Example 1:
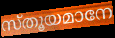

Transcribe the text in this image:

സ്തൂയമാനേ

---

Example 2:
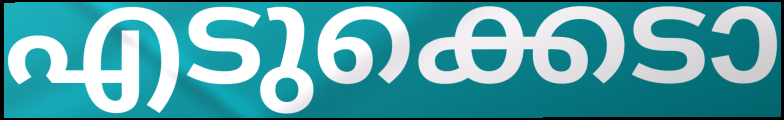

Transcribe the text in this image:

എടുക്കെടാ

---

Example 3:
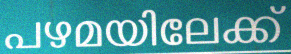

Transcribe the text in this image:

പഴമയിലേക്ക്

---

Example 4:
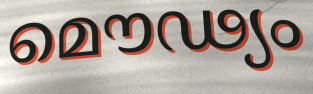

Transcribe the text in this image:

മൌഢ്യം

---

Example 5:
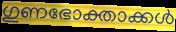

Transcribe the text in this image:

ഗുണഭോക്താക്കൾ